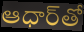
ఆధార్‌తో